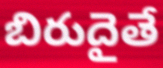
బిరుదైతే